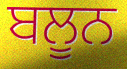
ਬਲੂਨ